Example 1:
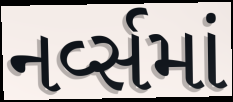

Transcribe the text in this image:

નર્વ્સમાં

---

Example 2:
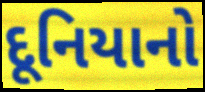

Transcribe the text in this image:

દૂનિયાનો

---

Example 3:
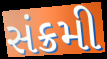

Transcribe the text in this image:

સંક્રમી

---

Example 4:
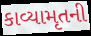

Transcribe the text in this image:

કાવ્યામૃતની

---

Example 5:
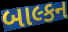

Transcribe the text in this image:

બાલ્કન